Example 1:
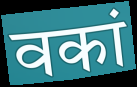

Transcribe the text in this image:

वकां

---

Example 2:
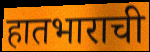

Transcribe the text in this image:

हातभाराची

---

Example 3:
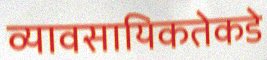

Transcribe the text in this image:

व्यावसायिकतेकडे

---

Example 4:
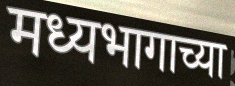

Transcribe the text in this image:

मध्यभागाच्या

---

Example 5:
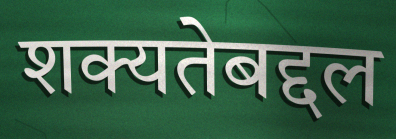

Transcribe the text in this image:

शक्यतेबद्दल